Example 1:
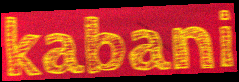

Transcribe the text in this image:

kabani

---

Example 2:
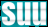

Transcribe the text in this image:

suu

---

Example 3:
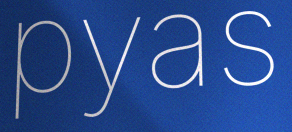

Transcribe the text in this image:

pyas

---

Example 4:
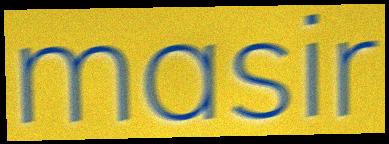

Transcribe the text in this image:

masir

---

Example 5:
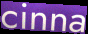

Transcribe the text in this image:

cinna